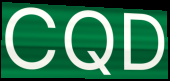
CQD